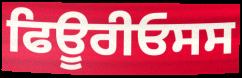
ਫਿਊਰੀਓਸਸ